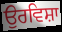
ਉਰਵਿਸ਼ਾ